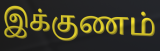
இக்குணம்